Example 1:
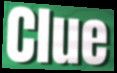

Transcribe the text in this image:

Clue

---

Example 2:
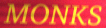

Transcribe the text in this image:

MONKS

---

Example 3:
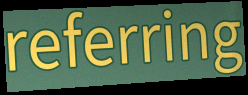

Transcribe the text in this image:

referring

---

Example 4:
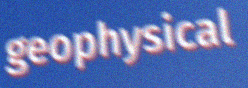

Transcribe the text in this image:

geophysical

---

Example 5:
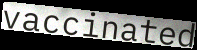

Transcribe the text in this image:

vaccinated